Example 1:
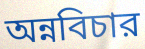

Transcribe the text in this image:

অন্নবিচার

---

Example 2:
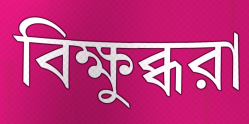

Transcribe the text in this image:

বিক্ষুব্ধরা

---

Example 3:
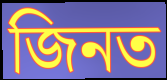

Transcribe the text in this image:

জিনত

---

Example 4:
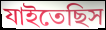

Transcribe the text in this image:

যাইতেছিস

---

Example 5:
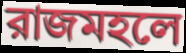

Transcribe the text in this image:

রাজমহলে